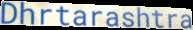
Dhrtarashtra